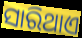
ସାରିଥାଏ